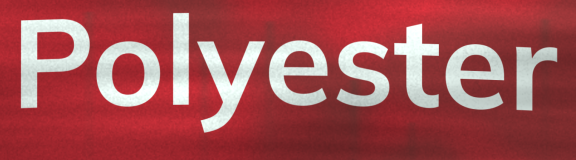
Polyester